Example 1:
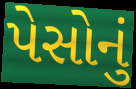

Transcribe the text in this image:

પેસોનું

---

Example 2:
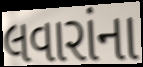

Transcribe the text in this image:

લવારાંના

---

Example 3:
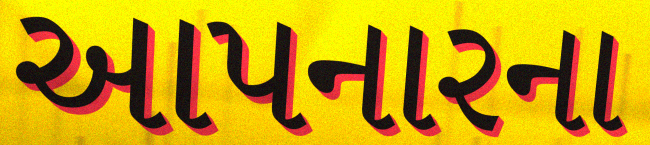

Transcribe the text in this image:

આપનારના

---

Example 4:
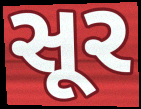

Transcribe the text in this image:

સૂર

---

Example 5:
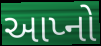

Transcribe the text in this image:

આપ્નો